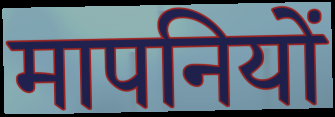
मापनियों